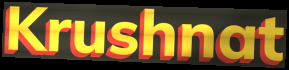
Krushnat